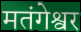
मतंगेश्वर